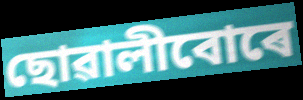
ছোৱালীবোৰে